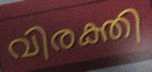
വിരക്തി